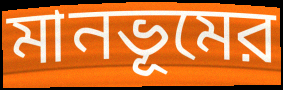
মানভূমের